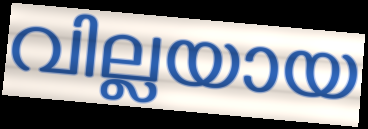
വില്ലയായ